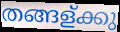
തങ്ങള്ക്കു